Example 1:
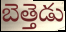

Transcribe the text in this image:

బెత్తెడు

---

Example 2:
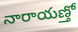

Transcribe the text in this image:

నారాయణ్తో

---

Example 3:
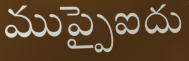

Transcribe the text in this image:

ముప్పైఐదు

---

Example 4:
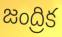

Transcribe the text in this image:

జంద్రిక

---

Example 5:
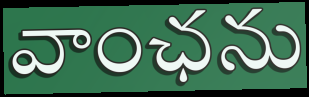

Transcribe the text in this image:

వాంఛను